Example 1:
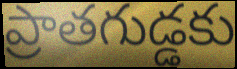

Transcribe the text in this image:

ప్రాతగుడ్డకు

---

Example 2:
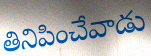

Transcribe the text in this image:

తినిపించేవాడు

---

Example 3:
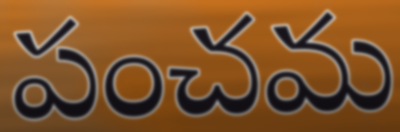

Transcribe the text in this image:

పంచమ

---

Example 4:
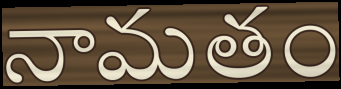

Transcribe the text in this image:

నామతం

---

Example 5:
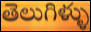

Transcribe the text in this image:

తెలుగిళ్ళు